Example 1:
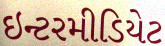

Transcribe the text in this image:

ઇન્ટરમીડિયેટ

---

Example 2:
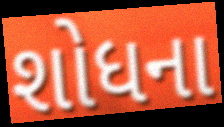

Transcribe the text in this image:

શોધના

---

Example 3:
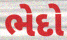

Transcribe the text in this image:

ભેદો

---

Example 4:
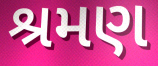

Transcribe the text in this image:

શ્રમણ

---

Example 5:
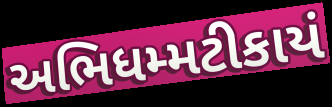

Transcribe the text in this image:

અભિધમ્મટીકાયં